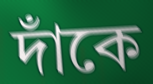
দাঁকে